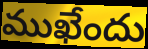
ముఖేందు